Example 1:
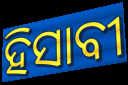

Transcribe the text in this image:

ହିସାବୀ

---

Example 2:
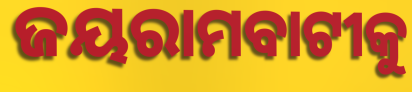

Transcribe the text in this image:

ଜୟରାମବାଟୀକୁ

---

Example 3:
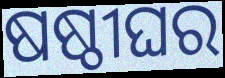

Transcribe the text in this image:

ଷଷ୍ଠୀଘର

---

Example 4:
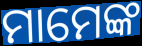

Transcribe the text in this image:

ମାମେଙ୍କ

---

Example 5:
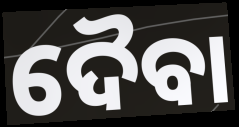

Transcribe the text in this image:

ଦୈବା